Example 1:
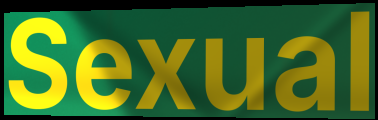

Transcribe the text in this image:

Sexual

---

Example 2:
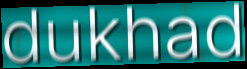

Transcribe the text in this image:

dukhad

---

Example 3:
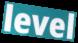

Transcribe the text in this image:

level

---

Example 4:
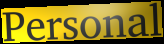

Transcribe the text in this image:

Personal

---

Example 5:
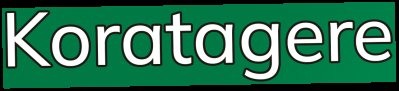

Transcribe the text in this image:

Koratagere